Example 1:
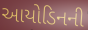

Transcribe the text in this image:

આયોડિનની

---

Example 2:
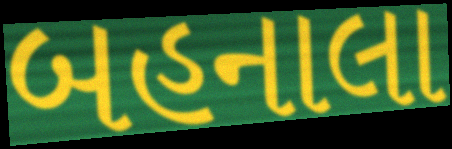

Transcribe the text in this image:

બહનાલા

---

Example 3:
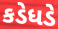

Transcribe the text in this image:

કડેધડે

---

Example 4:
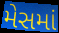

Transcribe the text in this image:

મેસમાં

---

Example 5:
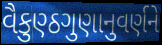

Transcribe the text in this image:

વૈકુણ્ઠગુણાનુવર્ણને